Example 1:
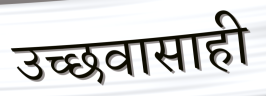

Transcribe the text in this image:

उच्छवासाही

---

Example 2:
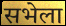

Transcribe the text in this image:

सभेला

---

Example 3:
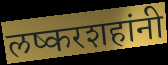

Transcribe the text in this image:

लष्करशहांनी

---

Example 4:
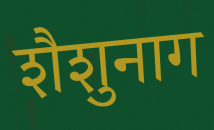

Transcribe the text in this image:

शैशुनाग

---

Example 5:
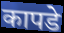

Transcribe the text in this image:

कापडे